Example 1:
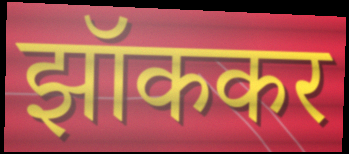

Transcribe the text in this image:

झॉककर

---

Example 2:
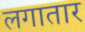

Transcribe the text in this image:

लगातार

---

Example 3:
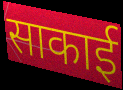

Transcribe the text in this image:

साकाई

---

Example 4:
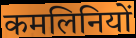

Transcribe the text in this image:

कमलिनियों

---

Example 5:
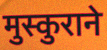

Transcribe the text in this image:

मुस्कुराने